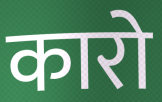
कारो